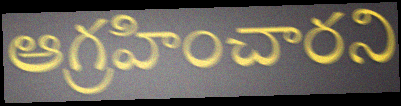
ఆగ్రహించారని